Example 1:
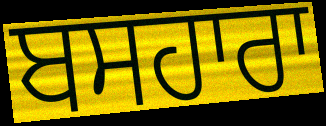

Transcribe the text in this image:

ਬਸਹਾਰਾ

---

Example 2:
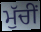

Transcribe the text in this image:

ਮੁੱਚੀਂ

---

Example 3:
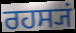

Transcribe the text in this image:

ਰਹਸ੍ਯਂ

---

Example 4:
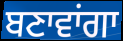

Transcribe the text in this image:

ਬਣਾਵਾਂਗਾ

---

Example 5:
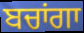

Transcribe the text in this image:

ਬਚਾਂਗਾ